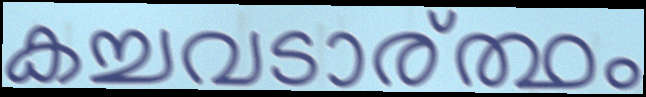
കച്ചവടാര്ത്ഥം